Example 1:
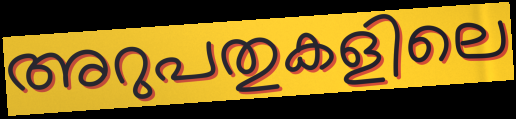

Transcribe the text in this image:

അറുപതുകളിലെ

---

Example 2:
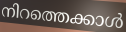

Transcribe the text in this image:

നിറത്തെക്കാൾ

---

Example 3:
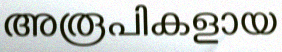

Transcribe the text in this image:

അരൂപികളായ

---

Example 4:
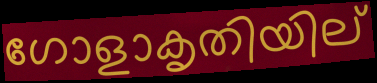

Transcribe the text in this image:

ഗോളാകൃതിയില്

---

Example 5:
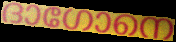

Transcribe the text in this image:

ദാഗോനെ